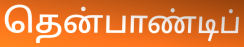
தென்பாண்டிப்